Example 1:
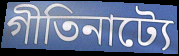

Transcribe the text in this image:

গীতিনাট্যে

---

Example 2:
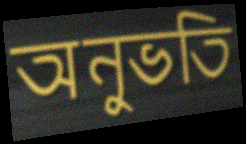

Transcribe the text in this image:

অনুভতি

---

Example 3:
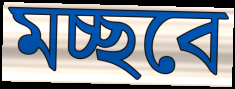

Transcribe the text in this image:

মচ্ছবে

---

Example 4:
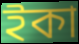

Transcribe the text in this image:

ইকা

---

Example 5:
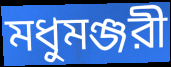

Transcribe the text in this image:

মধুমঞ্জরী